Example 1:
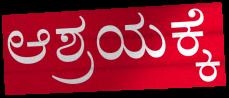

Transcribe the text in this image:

ಆಶ್ರಯಕ್ಕೆ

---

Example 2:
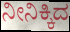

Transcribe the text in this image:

ನೀನಿಕ್ಕಿದ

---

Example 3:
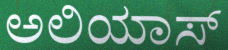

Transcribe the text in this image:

ಅಲಿಯಾಸ್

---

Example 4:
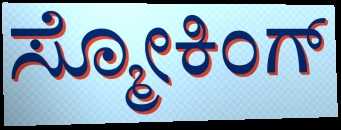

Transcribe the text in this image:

ಸ್ಮೋಕಿಂಗ್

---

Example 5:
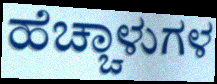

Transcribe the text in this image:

ಹೆಚ್ಚಾಳುಗಳ